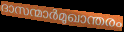
ദാസന്മാർമുഖാന്തരം